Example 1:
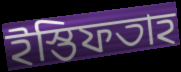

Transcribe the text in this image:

ইস্তিফতাহ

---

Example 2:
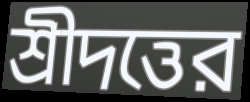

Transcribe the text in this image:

শ্রীদত্তের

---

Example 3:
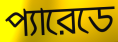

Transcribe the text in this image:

প্যারেডে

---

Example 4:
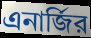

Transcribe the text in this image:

এনার্জির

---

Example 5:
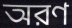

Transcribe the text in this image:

অরণ